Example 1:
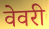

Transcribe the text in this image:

वेवरी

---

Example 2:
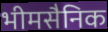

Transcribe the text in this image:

भीमसैनिक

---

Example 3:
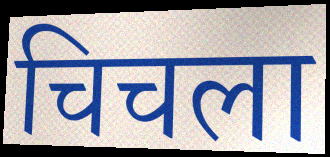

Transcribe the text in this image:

चिचला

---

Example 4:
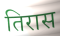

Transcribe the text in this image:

तिरास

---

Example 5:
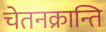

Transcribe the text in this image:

चेतनक्रान्ति